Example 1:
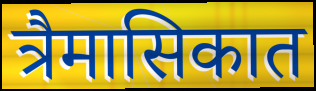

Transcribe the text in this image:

त्रैमासिकात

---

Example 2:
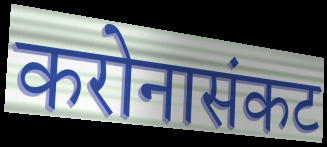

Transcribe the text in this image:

करोनासंकट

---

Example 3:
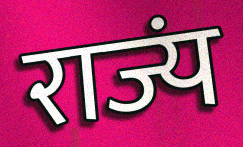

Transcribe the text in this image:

राज्यं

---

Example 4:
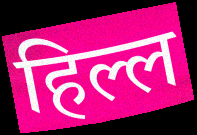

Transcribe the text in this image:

हिल्ल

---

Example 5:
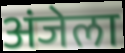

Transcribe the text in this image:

अंजेला